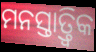
ମନସ୍ତାତ୍ତ୍ବିକ